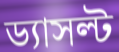
ড্যাসল্ট